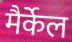
मैर्केल